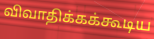
விவாதிக்கக்கூடிய